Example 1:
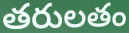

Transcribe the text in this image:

తరులతం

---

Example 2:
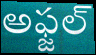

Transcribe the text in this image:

అఫ్జల్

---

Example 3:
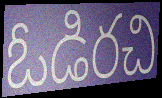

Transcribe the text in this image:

ఓడిరచి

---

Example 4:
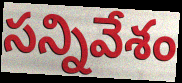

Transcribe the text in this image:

సన్నివేశం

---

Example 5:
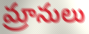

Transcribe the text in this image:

మ్రానులు